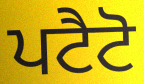
ਪਟੈਟੋ